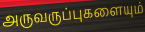
அருவருப்புகளையும்